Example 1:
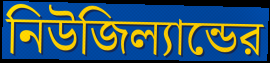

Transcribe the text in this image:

নিউজিল্যান্ডের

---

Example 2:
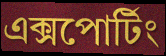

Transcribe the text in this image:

এক্সপোর্টিং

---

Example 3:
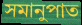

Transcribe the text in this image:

সমানুপাত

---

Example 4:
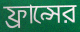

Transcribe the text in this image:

ফ্রান্সের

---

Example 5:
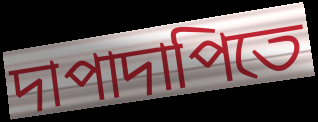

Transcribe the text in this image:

দাপাদাপিতে